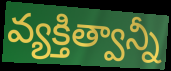
వ్యక్తిత్వాన్నీ